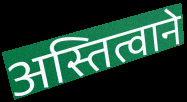
अस्तित्वाने